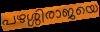
പഴശ്ശിരാജയെ